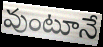
వుంటూనే